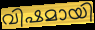
വിഷമായി